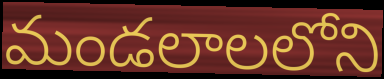
మండలాలలోని